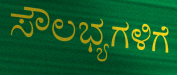
ಸೌಲಭ್ಯಗಳಿಗೆ